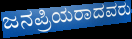
ಜನಪ್ರಿಯರಾದವರು